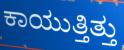
ಕಾಯುತ್ತಿತ್ತು